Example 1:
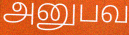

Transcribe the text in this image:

அனுபவ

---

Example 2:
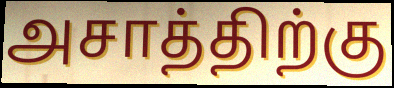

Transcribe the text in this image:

அசாத்திற்கு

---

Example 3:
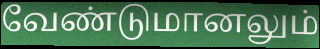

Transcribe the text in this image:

வேண்டுமானலும்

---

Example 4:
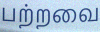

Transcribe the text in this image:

பற்றவை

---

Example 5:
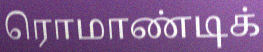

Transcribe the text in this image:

ரொமாண்டிக்